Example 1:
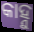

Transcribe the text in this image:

କାହ୍ନୁ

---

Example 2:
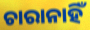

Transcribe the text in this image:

ଚାରାନାହିଁ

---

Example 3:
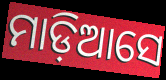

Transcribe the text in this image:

ମାଡ଼ିଆସେ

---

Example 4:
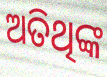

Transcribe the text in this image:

ଅତିଥିଙ୍କ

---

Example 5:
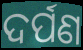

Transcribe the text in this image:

ଦର୍ପଣ